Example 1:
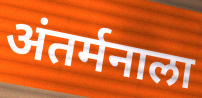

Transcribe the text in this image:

अंतर्मनाला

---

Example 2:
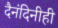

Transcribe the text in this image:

दैनंदिनीही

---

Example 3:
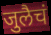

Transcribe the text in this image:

जुलैचं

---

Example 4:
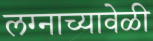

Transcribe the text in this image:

लग्नाच्यावेळी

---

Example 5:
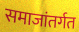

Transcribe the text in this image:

समाजांतर्गत